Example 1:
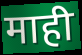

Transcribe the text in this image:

माही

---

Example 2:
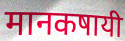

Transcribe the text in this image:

मानकषायी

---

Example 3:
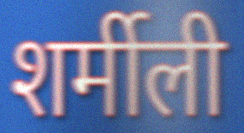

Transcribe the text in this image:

शर्मीली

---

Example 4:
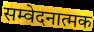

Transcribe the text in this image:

सम्वेदनात्मक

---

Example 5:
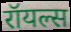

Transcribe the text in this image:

रॉयल्स